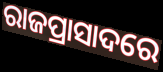
ରାଜପ୍ରାସାଦରେ